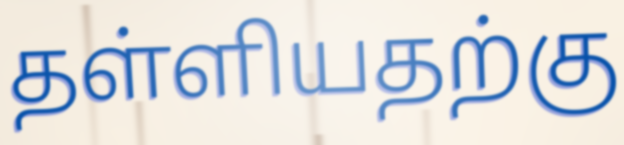
தள்ளியதற்கு